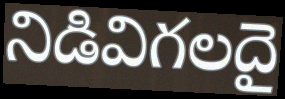
నిడివిగలదై